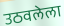
उठवलेला